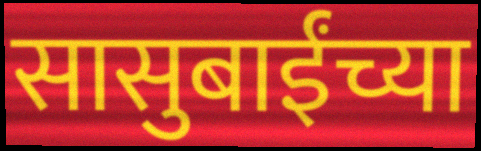
सासुबाईंच्या